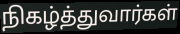
நிகழ்த்துவார்கள்